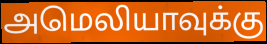
அமெலியாவுக்கு